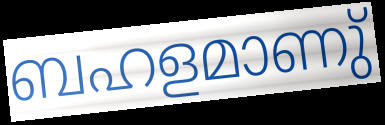
ബഹളമാണു്